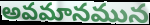
అవమానమున